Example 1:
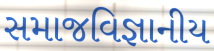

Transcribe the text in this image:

સમાજવિજ્ઞાનીય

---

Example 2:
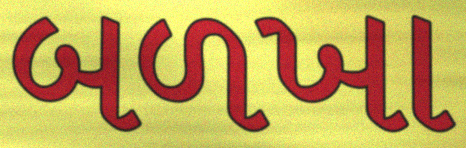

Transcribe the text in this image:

બળખા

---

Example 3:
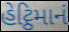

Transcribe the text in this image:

હેટ્ઠિમાનં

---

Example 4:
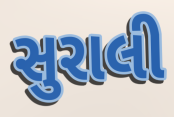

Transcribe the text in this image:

સુરાલી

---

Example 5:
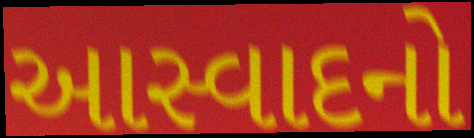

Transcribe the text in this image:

આસ્વાદનો